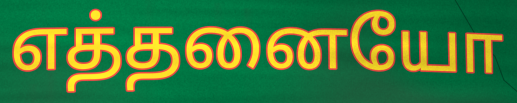
எத்தனையோ